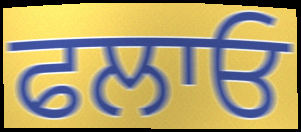
ਫਲਾਓ